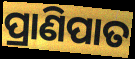
ପ୍ରାଣିପାତ